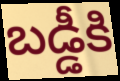
బడ్డీకి